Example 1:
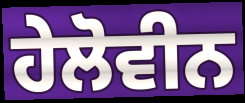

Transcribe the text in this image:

ਹੇਲੋਵੀਨ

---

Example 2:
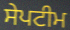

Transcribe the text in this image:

ਸੇਪਟੀਮ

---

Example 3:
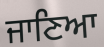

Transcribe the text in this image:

ਜਾਣਿਆ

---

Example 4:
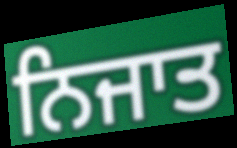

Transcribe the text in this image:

ਨਿਜਾਤ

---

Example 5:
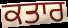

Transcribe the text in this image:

ਕਤਾਰ